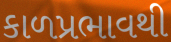
કાળપ્રભાવથી